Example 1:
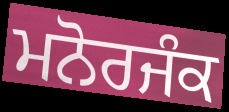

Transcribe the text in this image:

ਮਨੋਰਜੰਕ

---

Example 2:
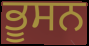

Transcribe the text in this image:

ਭੂਸਨ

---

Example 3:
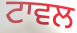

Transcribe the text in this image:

ਟਾਵਲ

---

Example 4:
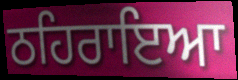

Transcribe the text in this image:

ਠਹਿਰਾਇਆ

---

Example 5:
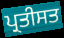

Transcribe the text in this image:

ਪ੍ਰਤੀਸਤ